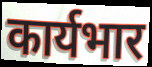
कार्यभार